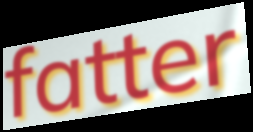
fatter